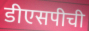
डीएसपीची